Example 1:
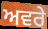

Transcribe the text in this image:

ਅਵਰੇ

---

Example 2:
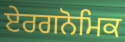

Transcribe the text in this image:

ਏਰਗਨੋਮਿਕ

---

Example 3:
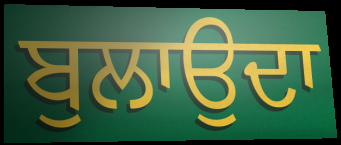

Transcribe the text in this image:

ਬੁਲਾਉਦਾ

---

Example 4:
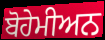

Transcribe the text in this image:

ਬੋਹੇਮੀਅਨ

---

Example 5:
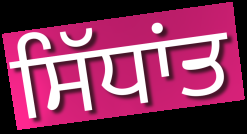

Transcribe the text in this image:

ਸਿੱਧਾਂਤ